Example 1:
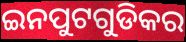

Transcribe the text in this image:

ଇନପୁଟଗୁଡିକର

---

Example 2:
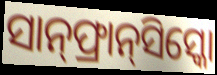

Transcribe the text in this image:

ସାନ୍‌ଫ୍ରାନ୍‌ସିସ୍କୋ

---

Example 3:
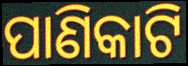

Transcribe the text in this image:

ପାଣିକାଟି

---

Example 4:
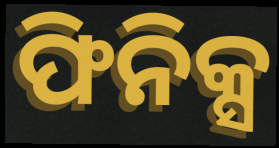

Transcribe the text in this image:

ଫିନିକ୍ସ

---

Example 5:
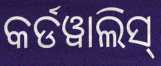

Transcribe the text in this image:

କର୍ଡୱାଲିସ୍